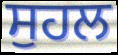
ਸੁਹਲ